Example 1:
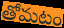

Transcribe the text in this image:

తోమటం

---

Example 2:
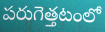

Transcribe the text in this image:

పరుగెత్తటంలో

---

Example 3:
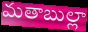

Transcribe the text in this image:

మతాబుల్లా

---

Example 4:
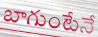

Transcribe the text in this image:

బాగుంటేనే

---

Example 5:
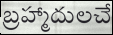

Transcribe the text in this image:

బ్రహ్మాదులచే